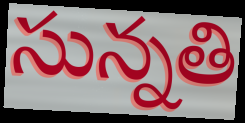
సున్నతి